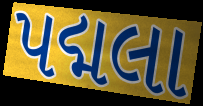
પદ્મલા